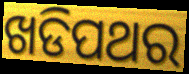
ଖଡିପଥର